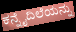
ಕನ್ನೈದಿಲೆಯನ್ನು